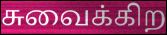
சுவைக்கிற